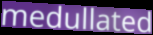
medullated